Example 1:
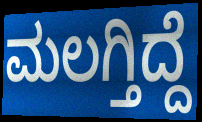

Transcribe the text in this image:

ಮಲಗ್ತಿದ್ದೆ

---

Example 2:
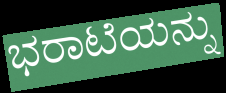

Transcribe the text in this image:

ಭರಾಟೆಯನ್ನು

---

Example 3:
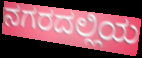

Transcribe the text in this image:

ನಗರದಲ್ಲಿಯ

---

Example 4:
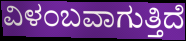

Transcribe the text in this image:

ವಿಳಂಬವಾಗುತ್ತಿದೆ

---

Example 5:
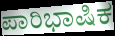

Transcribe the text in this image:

ಪಾರಿಭಾಷಿಕ